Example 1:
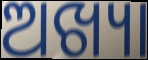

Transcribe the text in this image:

ଅଖ୍ୟା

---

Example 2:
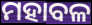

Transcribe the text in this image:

ମହାବଳ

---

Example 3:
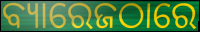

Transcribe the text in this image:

ବ୍ୟାରେଜଠାରେ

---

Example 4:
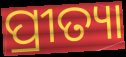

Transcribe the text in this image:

ପ୍ରୀତ୍ୟା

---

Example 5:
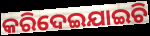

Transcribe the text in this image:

କରିଦେଇଯାଇଚି